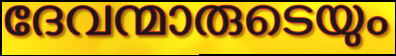
ദേവന്മാരുടെയും